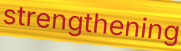
strengthening